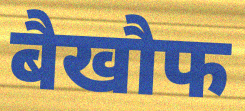
बैखौफ